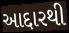
આદ્દારથી